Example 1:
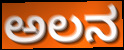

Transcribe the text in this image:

ಅಲನ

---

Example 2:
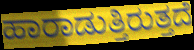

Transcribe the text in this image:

ಹಾರಾಡುತ್ತಿರುತ್ತದೆ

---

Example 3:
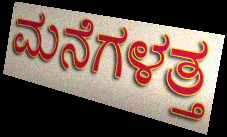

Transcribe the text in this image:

ಮನೆಗಳತ್ತ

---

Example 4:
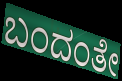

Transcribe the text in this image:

ಬಂದಂತೇ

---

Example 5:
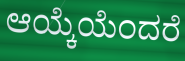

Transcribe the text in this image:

ಆಯ್ಕೆಯೆಂದರೆ